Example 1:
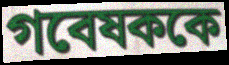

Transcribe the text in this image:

গবেষককে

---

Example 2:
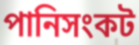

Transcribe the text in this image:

পানিসংকট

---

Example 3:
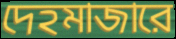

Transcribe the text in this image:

দেহমাজারে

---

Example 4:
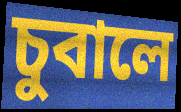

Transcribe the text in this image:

চুবালে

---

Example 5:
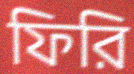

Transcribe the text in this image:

ফিরি